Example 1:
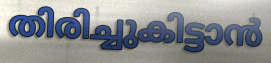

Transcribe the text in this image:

തിരിച്ചുകിട്ടാൻ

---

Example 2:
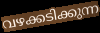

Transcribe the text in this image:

വഴക്കടിക്കുന്ന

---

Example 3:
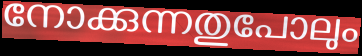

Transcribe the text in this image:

നോക്കുന്നതുപോലും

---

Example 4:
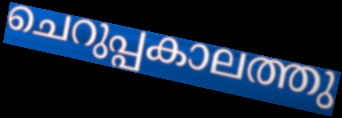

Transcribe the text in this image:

ചെറുപ്പകാലത്തു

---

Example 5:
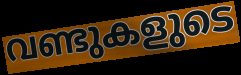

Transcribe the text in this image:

വണ്ടുകളുടെ